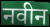
नवीन